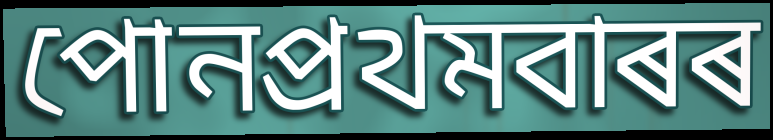
পোনপ্ৰথমবাৰৰ